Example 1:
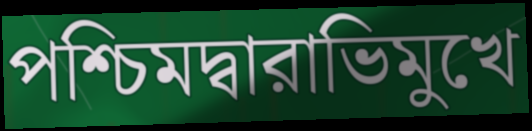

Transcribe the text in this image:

পশ্চিমদ্বারাভিমুখে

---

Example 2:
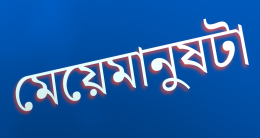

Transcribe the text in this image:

মেয়েমানুষটা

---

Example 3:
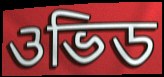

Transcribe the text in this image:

ওভিড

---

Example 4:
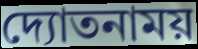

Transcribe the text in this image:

দ্যোতনাময়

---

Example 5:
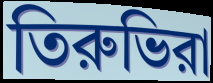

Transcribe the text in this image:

তিরুভিরা